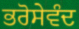
ਭਰੋਸੇਵੰਦ